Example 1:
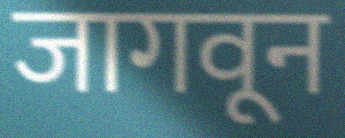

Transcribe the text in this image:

जागवून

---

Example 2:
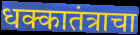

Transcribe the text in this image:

धक्कातंत्राचा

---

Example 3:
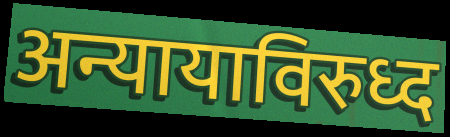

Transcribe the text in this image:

अन्यायाविरुध्द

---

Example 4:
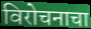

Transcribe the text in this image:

विरोचनाचा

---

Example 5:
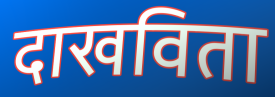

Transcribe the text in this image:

दाखविता